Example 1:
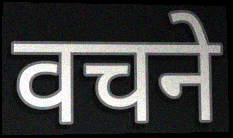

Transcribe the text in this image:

वचने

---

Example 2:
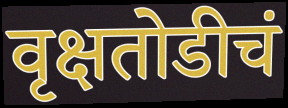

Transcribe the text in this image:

वृक्षतोडीचं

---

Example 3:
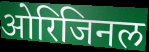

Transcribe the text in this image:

ओरिजिनल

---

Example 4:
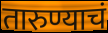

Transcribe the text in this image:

तारुण्याचं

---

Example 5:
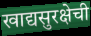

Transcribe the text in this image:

खाद्यसुरक्षेची